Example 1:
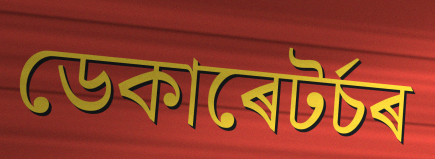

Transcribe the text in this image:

ডেকাৰেটৰ্চৰ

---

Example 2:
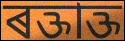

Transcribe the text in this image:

ৰক্তাক্ত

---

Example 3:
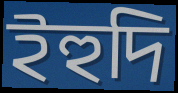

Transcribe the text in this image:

ইহুদি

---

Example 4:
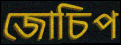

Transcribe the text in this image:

জোচিপ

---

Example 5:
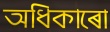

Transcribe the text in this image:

অধিকাৰো